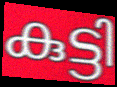
കുട്ടി